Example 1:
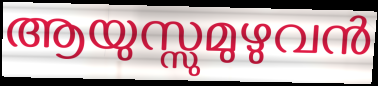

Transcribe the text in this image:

ആയുസ്സുമുഴുവൻ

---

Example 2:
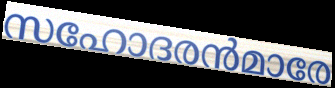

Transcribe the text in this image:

സഹോദരൻമാരേ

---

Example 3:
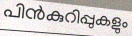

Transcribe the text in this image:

പിൻകുറിപ്പുകളും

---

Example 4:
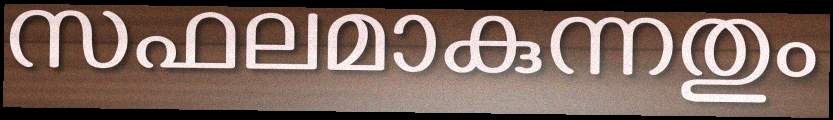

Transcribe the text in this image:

സഫലമാകുന്നതും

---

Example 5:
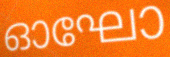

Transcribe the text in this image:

ഓഘോ